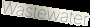
Wastewater